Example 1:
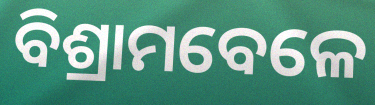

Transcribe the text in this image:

ବିଶ୍ରାମବେଳେ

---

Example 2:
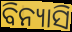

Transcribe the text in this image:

ବିନ୍ୟାସି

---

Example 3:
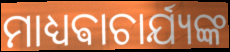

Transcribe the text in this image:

ମାଧ୍ୟଵାଚାର୍ଯ୍ୟଙ୍କ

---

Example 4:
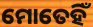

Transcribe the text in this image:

ମୋତେହିଁ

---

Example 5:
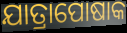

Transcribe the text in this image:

ଯାତ୍ରାପୋଷାକ